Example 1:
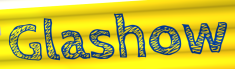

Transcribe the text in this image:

Glashow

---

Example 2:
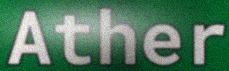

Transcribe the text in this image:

Ather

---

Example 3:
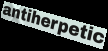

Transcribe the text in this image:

antiherpetic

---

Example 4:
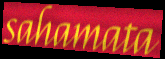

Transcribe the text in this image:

sahamata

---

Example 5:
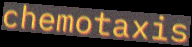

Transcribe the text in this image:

chemotaxis